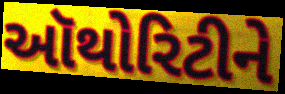
ઑથોરિટીને